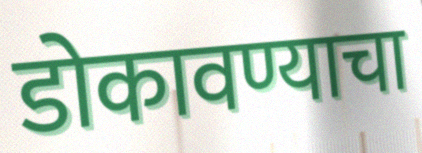
डोकावण्याचा